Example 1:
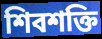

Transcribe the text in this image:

শিবশক্তি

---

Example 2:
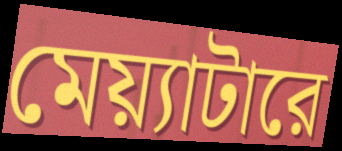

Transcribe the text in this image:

মেয়্যাটারে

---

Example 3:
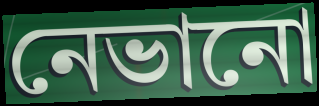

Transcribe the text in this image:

নেভানো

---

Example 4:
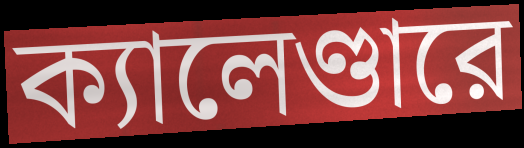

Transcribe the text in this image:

ক্যালেণ্ডারে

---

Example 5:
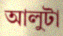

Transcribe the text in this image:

আলুটা